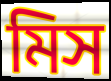
মিস